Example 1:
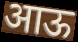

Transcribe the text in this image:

आऊ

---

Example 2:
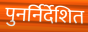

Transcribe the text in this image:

पुनर्निर्देशित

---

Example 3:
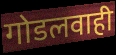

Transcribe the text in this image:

गोडलवाही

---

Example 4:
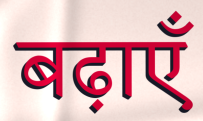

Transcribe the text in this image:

बढ़ाएँ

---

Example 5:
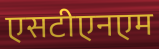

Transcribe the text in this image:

एसटीएनएम